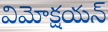
విమోక్షయన్